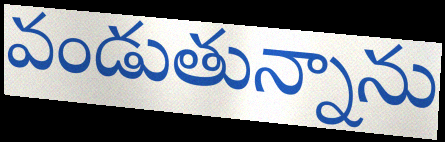
వండుతున్నాను